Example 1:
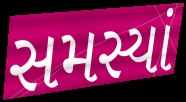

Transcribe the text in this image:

સમસ્યાં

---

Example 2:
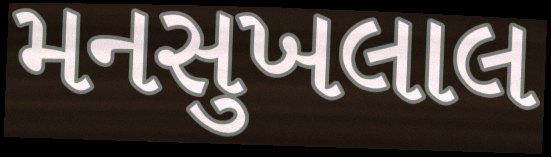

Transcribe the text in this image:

મનસુખલાલ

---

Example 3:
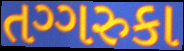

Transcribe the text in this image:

તગ્ગરુકા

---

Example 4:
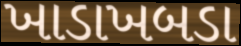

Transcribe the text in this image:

ખાડાખબડા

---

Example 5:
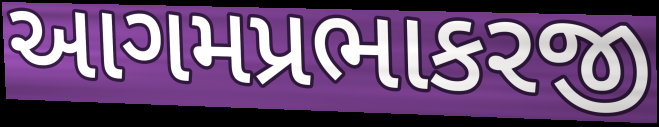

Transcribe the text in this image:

આગમપ્રભાકરજી